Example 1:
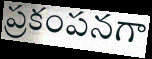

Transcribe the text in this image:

ప్రకంపనగా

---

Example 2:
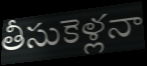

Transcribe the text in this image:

తీసుకెళ్లనా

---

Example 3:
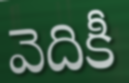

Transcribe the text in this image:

వెదికీ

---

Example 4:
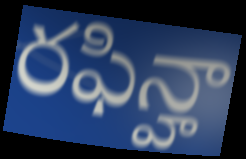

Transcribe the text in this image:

రఫిన్హా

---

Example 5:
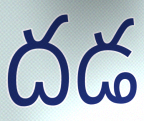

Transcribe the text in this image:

దడ